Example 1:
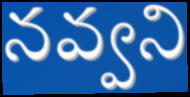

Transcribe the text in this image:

నవ్వని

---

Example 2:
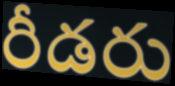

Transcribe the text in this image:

రీడరు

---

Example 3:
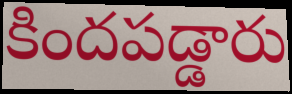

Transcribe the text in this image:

కిందపడ్డారు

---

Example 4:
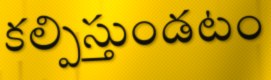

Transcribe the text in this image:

కల్పిస్తుండటం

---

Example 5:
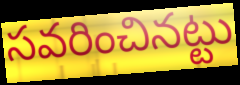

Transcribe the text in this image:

సవరించినట్టు